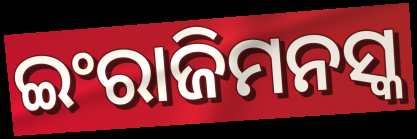
ଇଂରାଜିମନସ୍କ